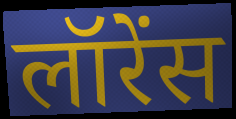
लॉरेंस